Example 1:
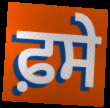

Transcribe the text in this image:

ਫ਼ਸੇ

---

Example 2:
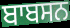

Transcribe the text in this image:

ਬਾਬਸਨ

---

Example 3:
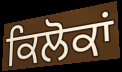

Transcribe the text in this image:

ਕਿਲੋਕਾਂ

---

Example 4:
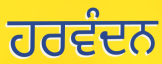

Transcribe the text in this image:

ਹਰਵੰਦਨ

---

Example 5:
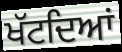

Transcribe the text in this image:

ਖੱਟਦਿਆਂ